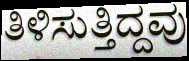
ತಿಳಿಸುತ್ತಿದ್ದವು